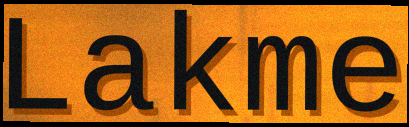
Lakme